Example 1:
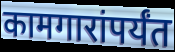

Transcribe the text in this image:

कामगारांपर्यंत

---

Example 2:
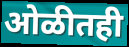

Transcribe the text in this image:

ओळीतही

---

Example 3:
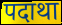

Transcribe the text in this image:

पदाथा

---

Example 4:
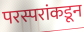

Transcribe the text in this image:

परस्परांकडून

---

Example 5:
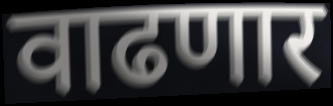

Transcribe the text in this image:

वाढणार